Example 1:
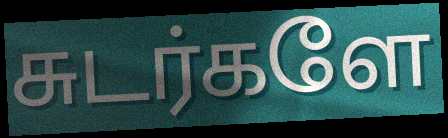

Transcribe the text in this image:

சுடர்களே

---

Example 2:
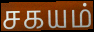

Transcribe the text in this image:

சகயம்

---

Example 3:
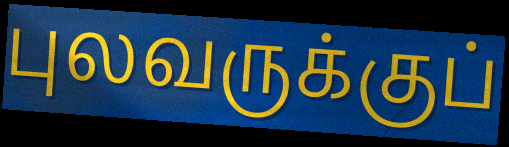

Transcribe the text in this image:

புலவருக்குப்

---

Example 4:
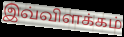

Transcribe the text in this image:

இவ்விளக்கம்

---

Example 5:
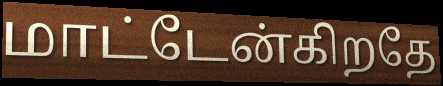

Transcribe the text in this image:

மாட்டேன்கிறதே